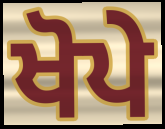
ਖੋਪੇ